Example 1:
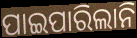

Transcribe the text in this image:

ପାଇପାରିଲାନି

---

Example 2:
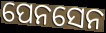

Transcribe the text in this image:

ପେନସେନ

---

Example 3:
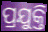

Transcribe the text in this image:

ପ୍ରଯୁକ୍ତି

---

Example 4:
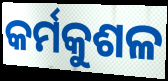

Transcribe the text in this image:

କର୍ମକୁଶଳ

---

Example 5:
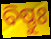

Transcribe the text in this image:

ବିଷ୍ଣୁଃ